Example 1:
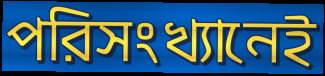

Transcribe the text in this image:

পরিসংখ্যানেই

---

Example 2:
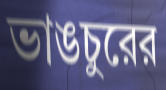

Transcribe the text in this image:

ভাঙচুরের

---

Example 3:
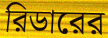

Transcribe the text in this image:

রিডারের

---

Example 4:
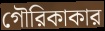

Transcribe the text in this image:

গৌরিকাকার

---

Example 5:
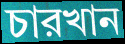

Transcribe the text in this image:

চারখান